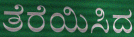
ತೆರೆಯಿಸಿದ